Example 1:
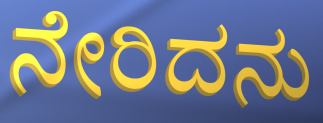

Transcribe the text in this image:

ನೇರಿದನು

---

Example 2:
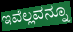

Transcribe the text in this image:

ಇವೆಲ್ಲವನ್ನೂ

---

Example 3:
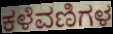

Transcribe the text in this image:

ಕಳೆವಣಿಗಳ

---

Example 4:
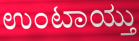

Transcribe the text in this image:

ಉಂಟಾಯ್ತು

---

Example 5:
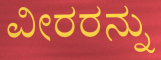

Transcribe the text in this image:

ವೀರರನ್ನು